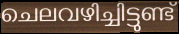
ചെലവഴിച്ചിട്ടുണ്ട്